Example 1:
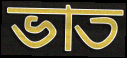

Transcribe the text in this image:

ভাত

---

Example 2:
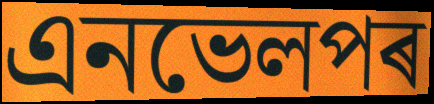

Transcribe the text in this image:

এনভেলপৰ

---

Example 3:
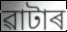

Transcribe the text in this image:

ৱাটাৰ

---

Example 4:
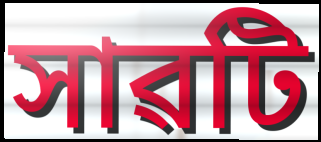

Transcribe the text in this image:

সাৱটি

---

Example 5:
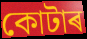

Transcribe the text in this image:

কোটাৰ